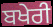
ਬਖੇਰੀ